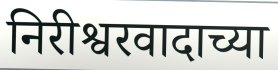
निरीश्वरवादाच्या